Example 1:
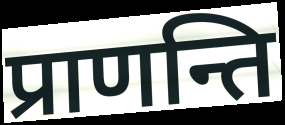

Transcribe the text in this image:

प्राणन्ति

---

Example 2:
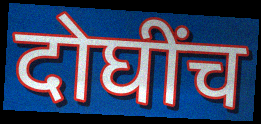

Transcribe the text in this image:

दोघींच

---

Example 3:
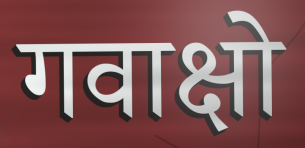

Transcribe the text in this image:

गवाक्षो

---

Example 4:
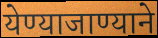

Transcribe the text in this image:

येण्याजाण्याने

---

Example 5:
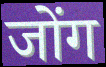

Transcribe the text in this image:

जोंग